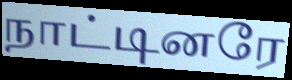
நாட்டினரே